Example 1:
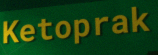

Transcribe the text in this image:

Ketoprak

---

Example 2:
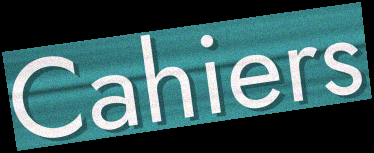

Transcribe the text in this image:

Cahiers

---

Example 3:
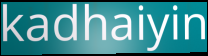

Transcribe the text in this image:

kadhaiyin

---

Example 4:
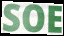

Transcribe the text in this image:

SOE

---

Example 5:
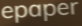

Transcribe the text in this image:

epaper